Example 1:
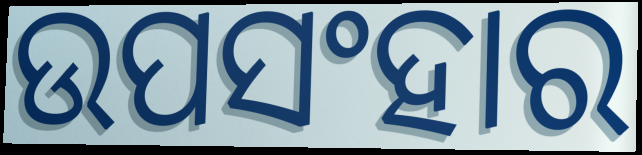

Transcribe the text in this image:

ଉପସଂହାର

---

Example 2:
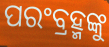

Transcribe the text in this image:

ପରଂବ୍ରହ୍ମଙ୍କୁ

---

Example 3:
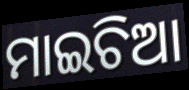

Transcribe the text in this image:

ମାଇଚିଆ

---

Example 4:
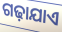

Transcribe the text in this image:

ଗଢ଼ାଯାଏ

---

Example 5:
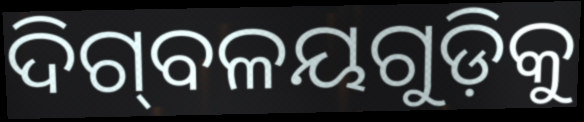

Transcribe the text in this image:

ଦିଗ୍‌ବଳୟଗୁଡ଼ିକୁ